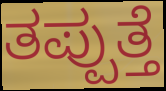
ತಪ್ಪುತ್ತೆ